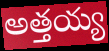
అత్తయ్య